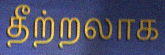
தீற்றலாக